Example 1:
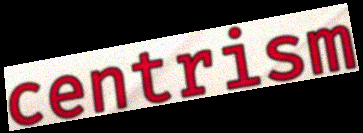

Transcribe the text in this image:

centrism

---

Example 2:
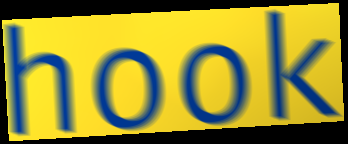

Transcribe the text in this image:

hook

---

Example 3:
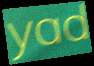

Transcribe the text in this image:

yad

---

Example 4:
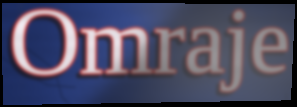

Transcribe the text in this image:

Omraje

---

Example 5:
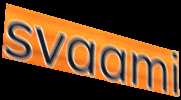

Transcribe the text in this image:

svaami